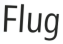
Flug